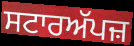
ਸਟਾਰਅੱਪਜ਼